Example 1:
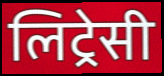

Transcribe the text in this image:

लिट्रेसी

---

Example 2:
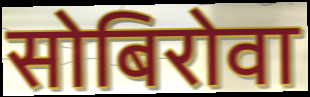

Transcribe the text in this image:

सोबिरोवा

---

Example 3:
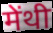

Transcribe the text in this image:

मेंथी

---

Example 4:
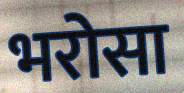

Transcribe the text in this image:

भरोसा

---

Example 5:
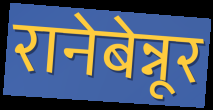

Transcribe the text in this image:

रानेबेन्नूर